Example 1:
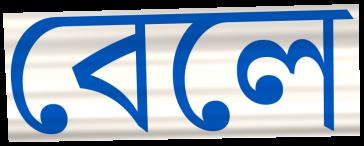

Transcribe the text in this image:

বেলে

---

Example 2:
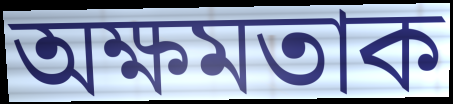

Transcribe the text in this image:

অক্ষমতাক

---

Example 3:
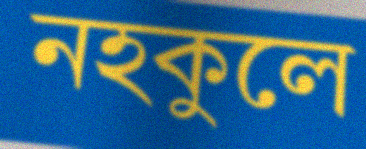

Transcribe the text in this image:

নহকুলে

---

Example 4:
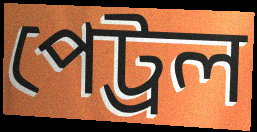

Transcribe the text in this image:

পেট্ৰল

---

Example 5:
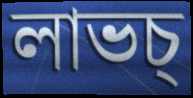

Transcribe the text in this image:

লাভচ্